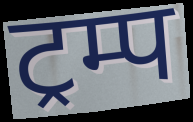
ट्रम्‍प